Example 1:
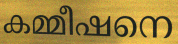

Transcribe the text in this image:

കമ്മീഷനെ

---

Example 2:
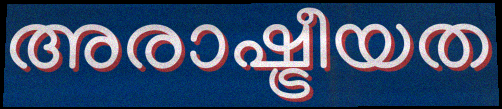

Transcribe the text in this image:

അരാഷ്ട്രീയത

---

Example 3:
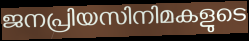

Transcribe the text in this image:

ജനപ്രിയസിനിമകളുടെ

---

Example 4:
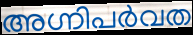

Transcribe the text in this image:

അഗ്നിപർവത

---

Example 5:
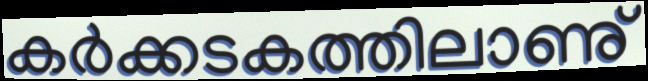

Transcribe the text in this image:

കർക്കടകത്തിലാണു്